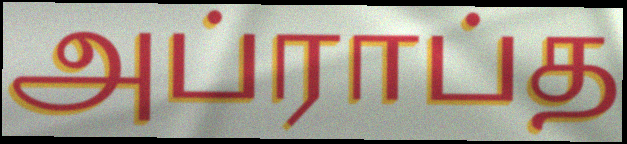
அப்ராப்த